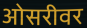
ओसरीवर